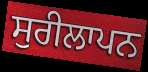
ਸੁਰੀਲਾਪਨ